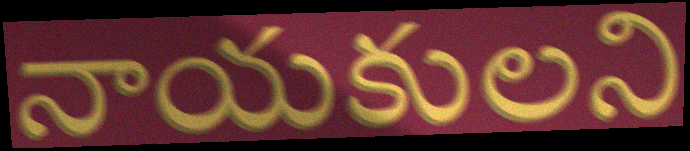
నాయకులని